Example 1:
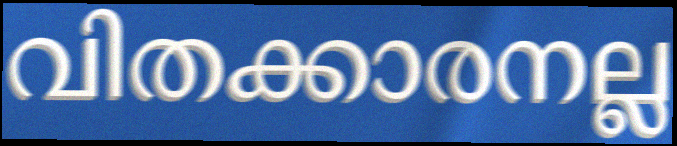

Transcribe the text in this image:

വിതക്കാരനല്ല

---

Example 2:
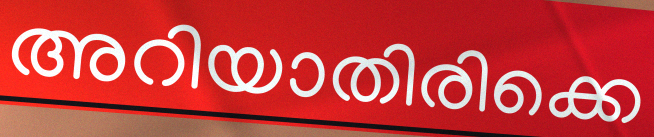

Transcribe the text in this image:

അറിയാതിരിക്കെ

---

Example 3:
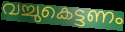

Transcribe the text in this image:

വച്ചുകെട്ടണം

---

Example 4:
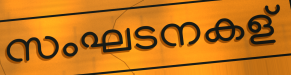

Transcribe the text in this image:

സംഘടനകള്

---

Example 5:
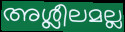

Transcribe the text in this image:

അശ്ലീലമല്ല